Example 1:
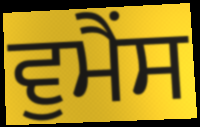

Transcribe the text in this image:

ਵੁਮੈਂਸ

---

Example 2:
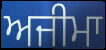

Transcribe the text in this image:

ਅਜੀਮਾ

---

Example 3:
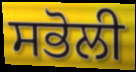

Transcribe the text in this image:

ਸਭੋਲੀ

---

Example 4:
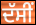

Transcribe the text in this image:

ਦੱਸੀਂ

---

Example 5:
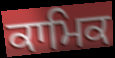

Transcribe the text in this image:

ਕਾਮਿਕ